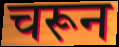
चरून